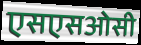
एसएसओसी